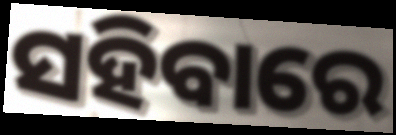
ସହିବାରେ